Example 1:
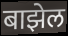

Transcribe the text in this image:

बाझेल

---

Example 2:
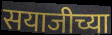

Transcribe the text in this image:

सयाजीच्या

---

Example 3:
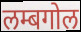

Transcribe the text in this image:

लम्बगोल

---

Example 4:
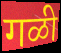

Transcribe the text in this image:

गळी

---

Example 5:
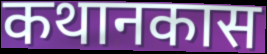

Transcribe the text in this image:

कथानकास